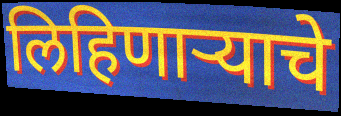
लिहिणाऱ्याचे